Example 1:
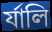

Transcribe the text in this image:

র্যালি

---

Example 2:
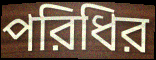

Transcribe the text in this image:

পরিধির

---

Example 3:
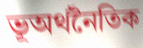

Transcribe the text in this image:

ভূঅর্থনৈতিক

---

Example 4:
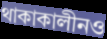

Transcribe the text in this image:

থাকাকালীনও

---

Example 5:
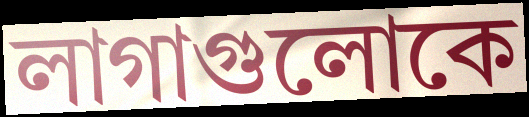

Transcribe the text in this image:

লাগাগুলোকে